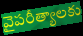
వైపరీత్యాలకు